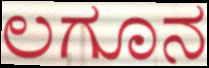
ಲಗೂನ